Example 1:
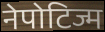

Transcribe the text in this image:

नेपोटिज्म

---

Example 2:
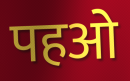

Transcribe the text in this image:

पहओ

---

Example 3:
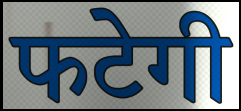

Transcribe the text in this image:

फटेगी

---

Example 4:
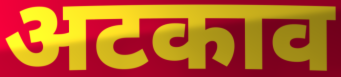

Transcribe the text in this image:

अटकाव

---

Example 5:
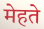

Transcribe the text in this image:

मेहते